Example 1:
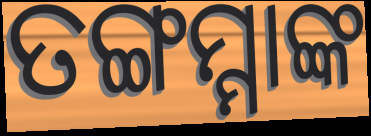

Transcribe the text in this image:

ତଙ୍ଗମ୍ମାଙ୍କ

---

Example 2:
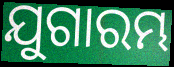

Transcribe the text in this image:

ଯୁଗାରମ୍ଭ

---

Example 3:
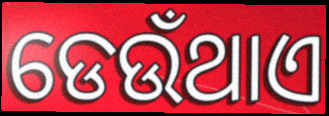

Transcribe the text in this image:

ଡେଉଁଥାଏ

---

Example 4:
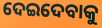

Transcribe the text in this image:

ଦେଇଦେବାକୁ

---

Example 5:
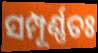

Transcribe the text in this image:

ସମ୍ପୂର୍ଣ୍ଣତଃ